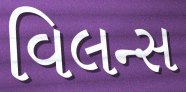
વિલન્સ